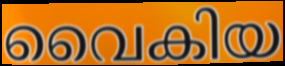
വൈകിയ